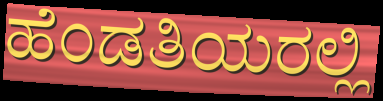
ಹೆಂಡತಿಯರಲ್ಲಿ